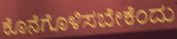
ಕೊನೆಗೊಳಿಸಬೇಕೆಂದು